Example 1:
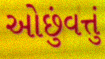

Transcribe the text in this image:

ઓછુંવત્તું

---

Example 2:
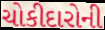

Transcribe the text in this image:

ચોકીદારોની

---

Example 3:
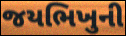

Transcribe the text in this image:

જયભિખુની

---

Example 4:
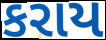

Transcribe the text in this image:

કરાય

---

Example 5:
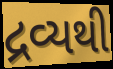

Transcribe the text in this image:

દ્રવ્યથી